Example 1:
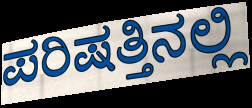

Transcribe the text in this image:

ಪರಿಷತ್ತಿನಲ್ಲಿ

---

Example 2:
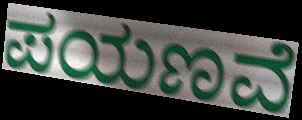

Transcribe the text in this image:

ಪಯಣವೆ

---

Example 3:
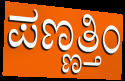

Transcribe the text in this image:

ಪಣ್ಣತ್ತಿಂ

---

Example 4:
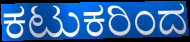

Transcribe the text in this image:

ಕಟುಕರಿಂದ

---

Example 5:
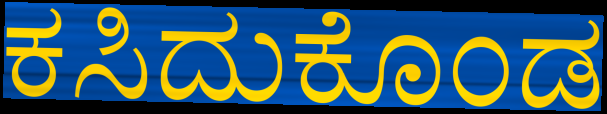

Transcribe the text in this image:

ಕಸಿದುಕೊಂಡ